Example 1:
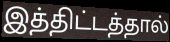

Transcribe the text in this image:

இத்திட்டத்தால்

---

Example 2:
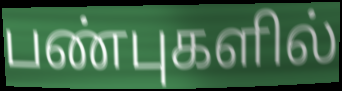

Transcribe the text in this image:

பண்புகளில்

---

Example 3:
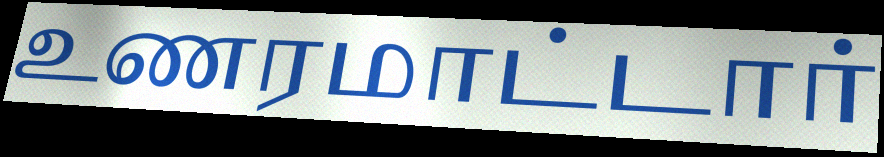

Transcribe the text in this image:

உணரமாட்டார்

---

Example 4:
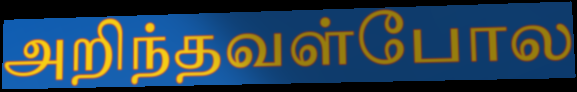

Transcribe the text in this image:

அறிந்தவள்போல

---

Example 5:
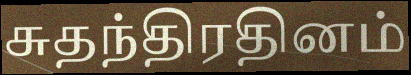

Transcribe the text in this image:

சுதந்திரதினம்